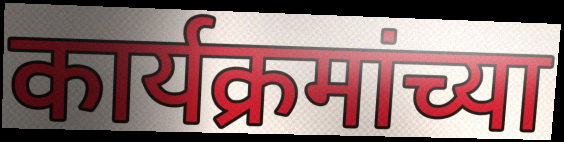
कार्यक्रमांच्या